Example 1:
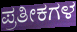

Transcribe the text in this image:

ಪ್ರತೀಕಗಳ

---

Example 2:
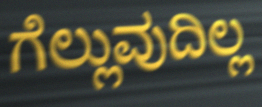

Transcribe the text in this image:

ಗೆಲ್ಲುವುದಿಲ್ಲ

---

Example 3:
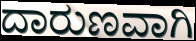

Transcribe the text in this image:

ದಾರುಣವಾಗಿ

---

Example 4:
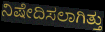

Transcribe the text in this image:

ನಿಷೇದಿಸಲಾಗಿತ್ತು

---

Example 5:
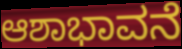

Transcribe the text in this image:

ಆಶಾಭಾವನೆ